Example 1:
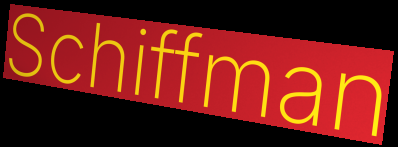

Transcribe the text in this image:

Schiffman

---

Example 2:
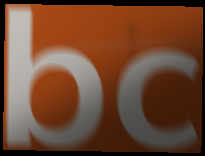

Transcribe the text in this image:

bc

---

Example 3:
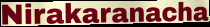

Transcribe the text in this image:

Nirakaranacha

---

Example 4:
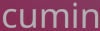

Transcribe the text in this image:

cumin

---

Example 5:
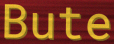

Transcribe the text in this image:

Bute